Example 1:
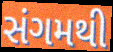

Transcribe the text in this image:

સંગમથી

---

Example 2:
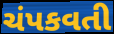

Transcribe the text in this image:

ચંપકવતી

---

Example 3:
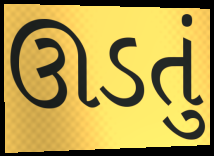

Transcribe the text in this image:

ઊડતું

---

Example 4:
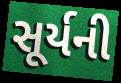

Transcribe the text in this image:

સૂર્યની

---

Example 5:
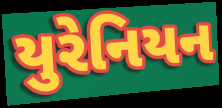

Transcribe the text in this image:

યુરેનિયન